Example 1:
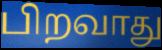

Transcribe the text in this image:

பிறவாது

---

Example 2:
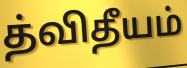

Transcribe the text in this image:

த்விதீயம்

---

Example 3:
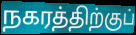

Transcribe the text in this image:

நகரத்திற்குப்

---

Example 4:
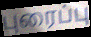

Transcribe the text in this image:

புரைப்பு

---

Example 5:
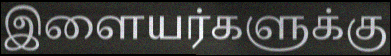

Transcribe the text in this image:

இளையர்களுக்கு